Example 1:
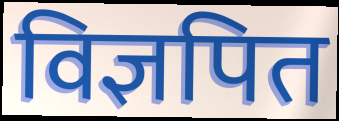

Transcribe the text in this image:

विज्ञपित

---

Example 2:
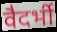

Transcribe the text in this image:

वैदर्भी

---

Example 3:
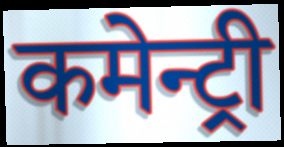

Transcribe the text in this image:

कमेन्ट्री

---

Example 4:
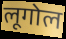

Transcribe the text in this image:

लूगोल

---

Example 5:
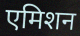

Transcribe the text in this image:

एमिशन